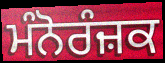
ਮੰਨੋਰੰਜ਼ਕ